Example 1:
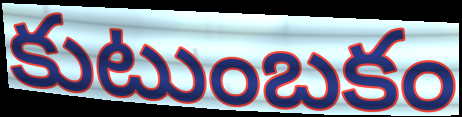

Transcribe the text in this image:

కుటుంబకం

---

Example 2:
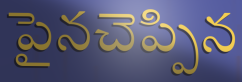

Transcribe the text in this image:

పైనచెప్పిన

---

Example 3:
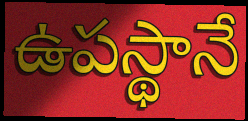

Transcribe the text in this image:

ఉపస్థానే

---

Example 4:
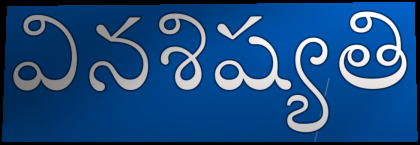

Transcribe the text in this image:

వినశిష్యతి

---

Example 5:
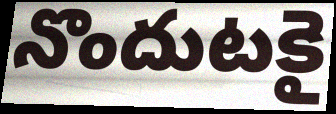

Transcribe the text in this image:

నొందుటకై